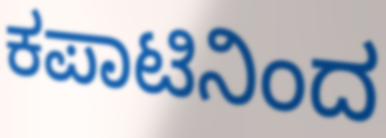
ಕಪಾಟಿನಿಂದ